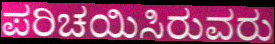
ಪರಿಚಯಿಸಿರುವರು